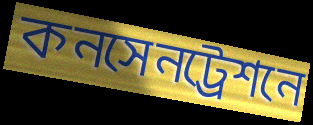
কনসেনট্রেশনে